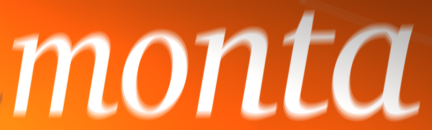
monta